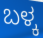
ಬಳ್ಕ